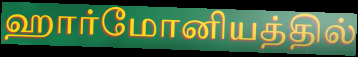
ஹார்மோனியத்தில்